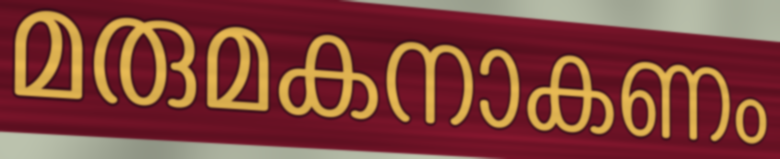
മരുമകനാകണം